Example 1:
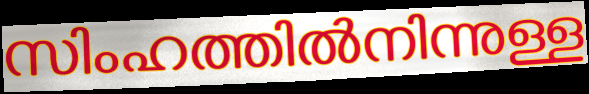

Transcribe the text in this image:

സിംഹത്തിൽനിന്നുള്ള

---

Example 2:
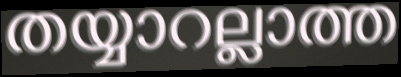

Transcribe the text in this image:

തയ്യാറല്ലാത്ത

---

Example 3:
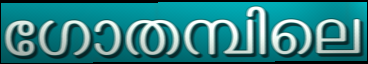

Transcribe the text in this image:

ഗോതമ്പിലെ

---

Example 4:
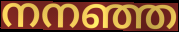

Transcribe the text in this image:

നനഞ്ഞ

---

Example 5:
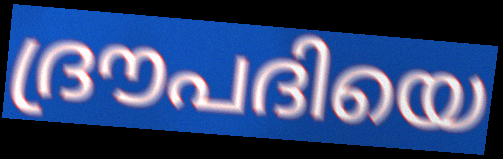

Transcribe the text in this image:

ദ്രൗപദിയെ